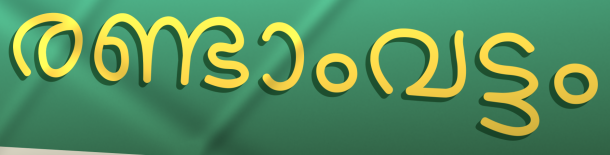
രണ്ടാംവട്ടം